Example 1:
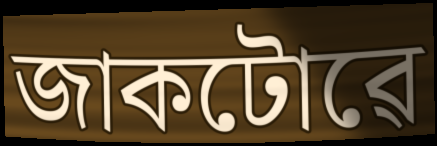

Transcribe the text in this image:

জাকটোৱে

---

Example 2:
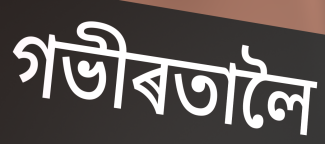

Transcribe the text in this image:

গভীৰতালৈ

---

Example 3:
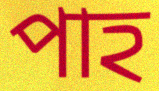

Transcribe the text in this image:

পাহ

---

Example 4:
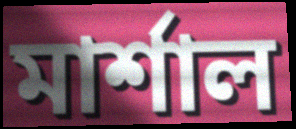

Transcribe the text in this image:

মাৰ্শাল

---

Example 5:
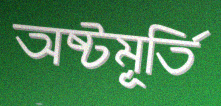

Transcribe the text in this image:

অষ্টমূৰ্তি